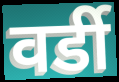
वर्डी